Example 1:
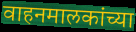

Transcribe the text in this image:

वाहनमालकांच्या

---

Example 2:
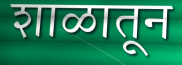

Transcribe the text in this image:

शाळातून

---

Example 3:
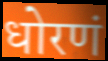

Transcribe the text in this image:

धोरणं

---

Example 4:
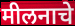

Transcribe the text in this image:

मीलनाचे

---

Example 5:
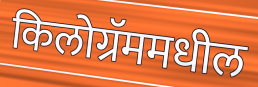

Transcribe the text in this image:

किलोग्रॅममधील